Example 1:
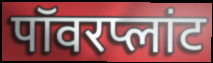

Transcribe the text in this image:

पॉवरप्लांट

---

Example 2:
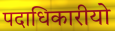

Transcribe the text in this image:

पदाधिकारीयो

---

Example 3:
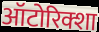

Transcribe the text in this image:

ऑटोरिक्‍शा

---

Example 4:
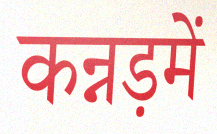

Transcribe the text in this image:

कन्नड़में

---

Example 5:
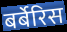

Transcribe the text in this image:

बर्बेरिस